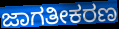
ಜಾಗತೀಕರಣ